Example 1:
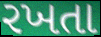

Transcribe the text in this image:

રખતા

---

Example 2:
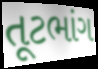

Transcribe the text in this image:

તૂટભાંગ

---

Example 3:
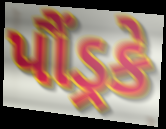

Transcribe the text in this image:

પૌંડ્રકે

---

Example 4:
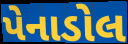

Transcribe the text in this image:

પેનાડોલ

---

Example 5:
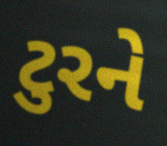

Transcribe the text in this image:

ટુરને